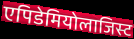
एपिडेमियोलाजिस्ट